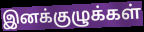
இனக்குழுக்கள்